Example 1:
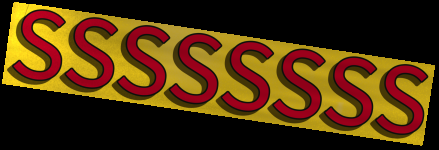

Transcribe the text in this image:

SSSSSSSS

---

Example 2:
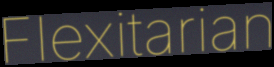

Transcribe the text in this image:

Flexitarian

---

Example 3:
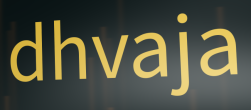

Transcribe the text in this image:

dhvaja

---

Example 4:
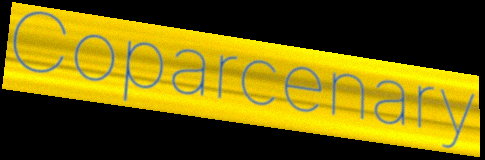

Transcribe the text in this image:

Coparcenary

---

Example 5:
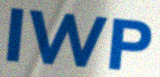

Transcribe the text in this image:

IWP